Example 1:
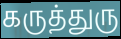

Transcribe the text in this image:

கருத்துரு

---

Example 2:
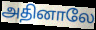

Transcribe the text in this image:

அதினாலே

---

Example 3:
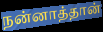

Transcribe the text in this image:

நன்னாத்தான்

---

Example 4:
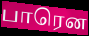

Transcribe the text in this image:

பாரென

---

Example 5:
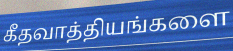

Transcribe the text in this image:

கீதவாத்தியங்களை